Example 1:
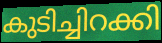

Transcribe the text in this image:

കുടിച്ചിറക്കി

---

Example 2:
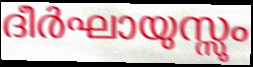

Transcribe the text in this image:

ദീർഘായുസ്സും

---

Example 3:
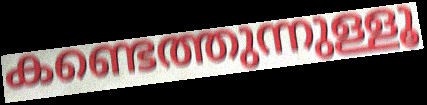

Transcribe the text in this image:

കണ്ടെത്തുന്നുള്ളൂ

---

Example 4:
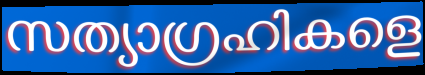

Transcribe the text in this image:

സത്യാഗ്രഹികളെ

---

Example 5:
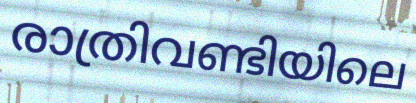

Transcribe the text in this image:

രാത്രിവണ്ടിയിലെ